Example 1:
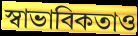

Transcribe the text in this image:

স্বাভাবিকতাও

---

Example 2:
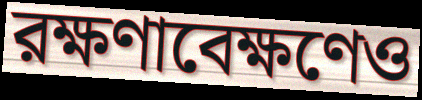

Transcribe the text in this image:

রক্ষণাবেক্ষণেও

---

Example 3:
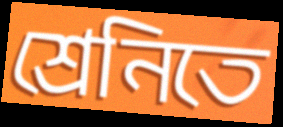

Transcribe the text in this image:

শ্রেনিতে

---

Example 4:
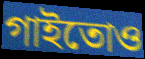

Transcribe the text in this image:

গাইতোও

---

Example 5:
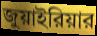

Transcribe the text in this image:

জুয়াইরিয়ার